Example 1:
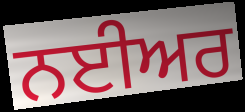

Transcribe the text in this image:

ਨਈਅਰ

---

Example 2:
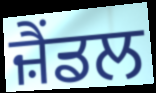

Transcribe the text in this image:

ਜ਼ੈਂਡਲ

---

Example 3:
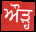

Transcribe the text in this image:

ਔੜ੍ਹ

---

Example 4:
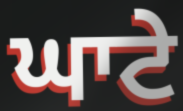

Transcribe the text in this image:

ਘਾਟੇ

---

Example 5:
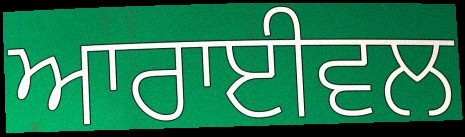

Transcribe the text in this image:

ਆਰਾਈਵਲ